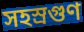
সহস্রগুণ